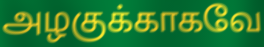
அழகுக்காகவே